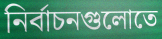
নির্বাচনগুলোতে